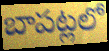
బాపట్లలో